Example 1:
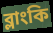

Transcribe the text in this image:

ব্লাংকি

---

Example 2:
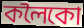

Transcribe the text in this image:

কলৈকো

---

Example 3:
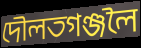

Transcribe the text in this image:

দৌলতগঞ্জলৈ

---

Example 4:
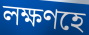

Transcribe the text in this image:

লক্ষণহে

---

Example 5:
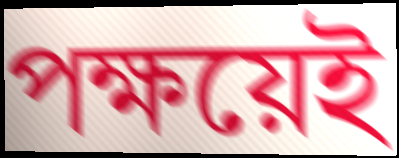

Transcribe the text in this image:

পক্ষয়েই